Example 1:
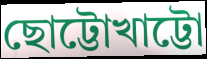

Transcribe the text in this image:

ছোট্টোখাট্টো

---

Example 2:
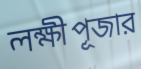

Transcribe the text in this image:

লক্ষীপূজার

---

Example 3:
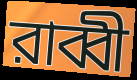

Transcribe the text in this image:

রাব্বী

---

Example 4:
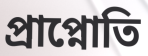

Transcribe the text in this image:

প্রাপ্নোতি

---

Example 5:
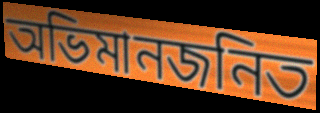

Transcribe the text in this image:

অভিমানজনিত